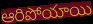
ఆరిపోయాయి